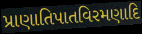
પ્રાણાતિપાતવિરમણાદિ